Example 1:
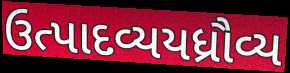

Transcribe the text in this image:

ઉત્પાદવ્યયધ્રૌવ્ય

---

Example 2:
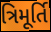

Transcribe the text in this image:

ત્રિમૂર્તિ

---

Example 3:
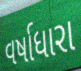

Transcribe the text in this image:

વર્ષાધારા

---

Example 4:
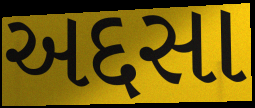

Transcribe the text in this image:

અદ્દસા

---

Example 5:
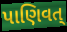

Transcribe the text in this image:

પાણિવત્